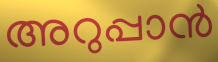
അറുപ്പാൻ